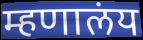
म्हणालंय